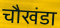
चौखंडा